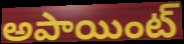
అపాయింట్